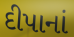
દીપાનાં